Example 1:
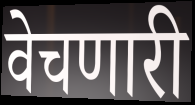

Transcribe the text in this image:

वेचणारी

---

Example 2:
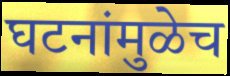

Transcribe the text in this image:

घटनांमुळेच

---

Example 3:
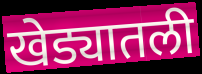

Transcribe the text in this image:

खेड्यातली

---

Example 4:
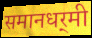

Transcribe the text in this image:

समानधर्मी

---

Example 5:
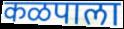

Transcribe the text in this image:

कळपाला